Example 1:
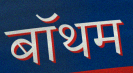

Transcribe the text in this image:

बॉथम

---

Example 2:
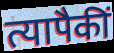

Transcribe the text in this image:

त्यापैकीं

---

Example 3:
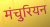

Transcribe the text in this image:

मंचुरियन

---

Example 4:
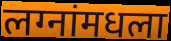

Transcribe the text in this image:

लग्नांमधला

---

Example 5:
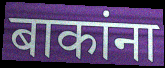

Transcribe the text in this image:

बाकांना